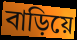
বাড়িয়ে